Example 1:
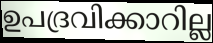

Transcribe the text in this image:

ഉപദ്രവിക്കാറില്ല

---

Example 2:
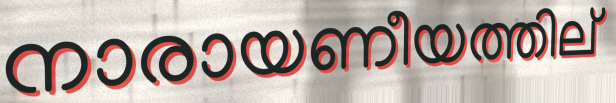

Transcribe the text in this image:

നാരായണീയത്തില്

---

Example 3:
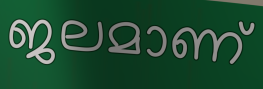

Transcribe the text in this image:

ജലമാണ്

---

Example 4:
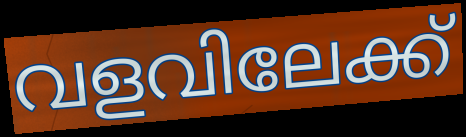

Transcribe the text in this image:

വളവിലേക്ക്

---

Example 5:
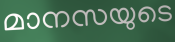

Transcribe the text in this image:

മാനസയുടെ